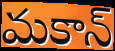
మకాన్